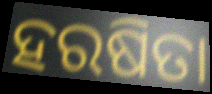
ହରଷିତା